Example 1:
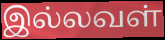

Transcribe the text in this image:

இல்லவள்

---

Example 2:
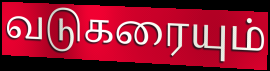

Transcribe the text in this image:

வடுகரையும்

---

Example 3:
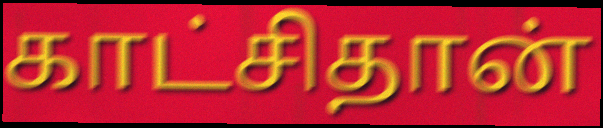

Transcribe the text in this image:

காட்சிதான்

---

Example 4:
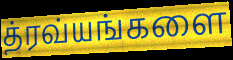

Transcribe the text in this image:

த்ரவ்யங்களை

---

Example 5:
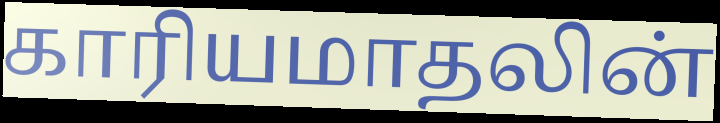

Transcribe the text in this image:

காரியமாதலின்